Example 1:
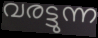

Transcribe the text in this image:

വരട്ടുന്ന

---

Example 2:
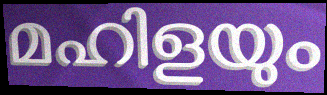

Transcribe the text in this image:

മഹിളയും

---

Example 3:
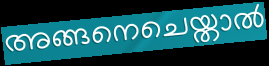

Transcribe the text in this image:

അങ്ങനെചെയ്താൽ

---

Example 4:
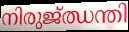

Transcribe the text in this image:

നിരുജ്ഝന്തി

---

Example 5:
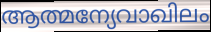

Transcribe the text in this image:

ആത്മന്യേവാഖിലം